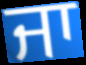
ਜਾ